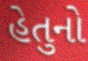
હેતુનો